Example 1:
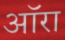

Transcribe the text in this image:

ऑरा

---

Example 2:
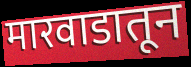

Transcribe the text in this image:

मारवाडातून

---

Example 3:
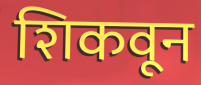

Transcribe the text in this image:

शिकवून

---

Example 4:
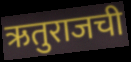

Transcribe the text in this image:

ऋतुराजची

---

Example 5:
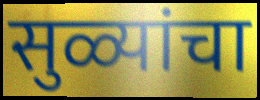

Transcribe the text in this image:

सुळ्यांचा